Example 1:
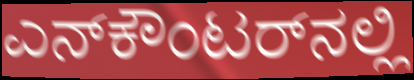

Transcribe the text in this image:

ಎನ್‌ಕೌಂಟರ್‌ನಲ್ಲಿ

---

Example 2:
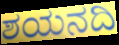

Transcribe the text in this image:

ಶಯನದಿ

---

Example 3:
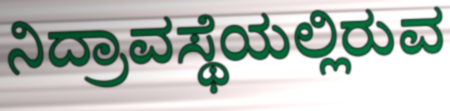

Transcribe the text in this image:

ನಿದ್ರಾವಸ್ಥೆಯಲ್ಲಿರುವ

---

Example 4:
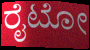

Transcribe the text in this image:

ರೈಟೋ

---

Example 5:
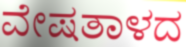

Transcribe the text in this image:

ವೇಷತಾಳದ